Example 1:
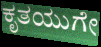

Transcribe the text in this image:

ಕೃತಯುಗೇ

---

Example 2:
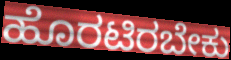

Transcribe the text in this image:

ಹೊರಟಿರಬೇಕು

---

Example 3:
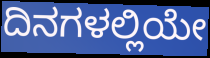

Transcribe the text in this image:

ದಿನಗಳಲ್ಲಿಯೇ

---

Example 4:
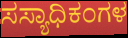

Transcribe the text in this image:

ಸಸ್ಯಾಧಿಕಂಗಳ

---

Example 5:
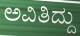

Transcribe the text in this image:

ಅವಿತಿದ್ದು